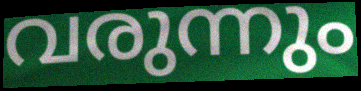
വരുന്നും